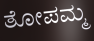
ತೋಪಮ್ಮ